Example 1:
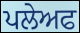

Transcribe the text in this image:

ਪਲੇਅਫ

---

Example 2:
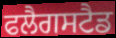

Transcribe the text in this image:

ਫਲੈਗਸਟੈਡ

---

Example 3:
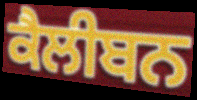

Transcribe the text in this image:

ਕੈਲੀਬਨ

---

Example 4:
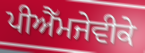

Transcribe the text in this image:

ਪੀਐੱਮਜੇਵੀਕੇ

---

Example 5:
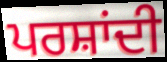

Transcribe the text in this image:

ਪਰਸ਼ਾਂਦੀ